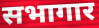
सभागार